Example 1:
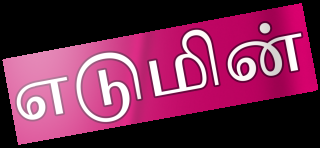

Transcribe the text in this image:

எடுமின்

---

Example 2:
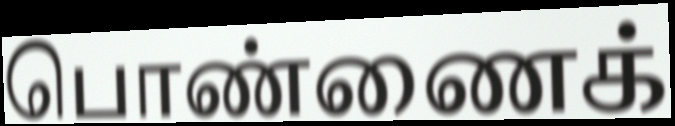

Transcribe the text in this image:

பொண்ணைக்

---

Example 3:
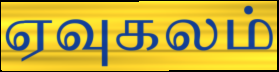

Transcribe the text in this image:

ஏவுகலம்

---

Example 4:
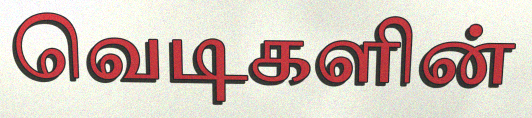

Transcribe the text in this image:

வெடிகளின்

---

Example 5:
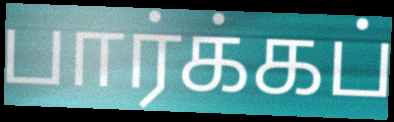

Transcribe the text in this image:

பார்க்கப்